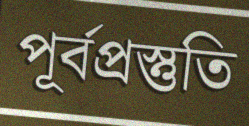
পূর্বপ্রস্তুতি